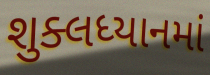
શુક્લધ્યાનમાં